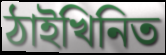
ঠাইখিনিত